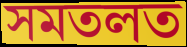
সমতলত